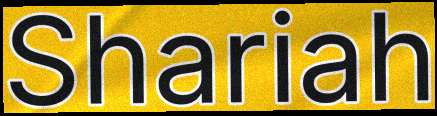
Shariah